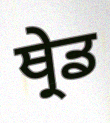
ਥ੍ਰੇਡ